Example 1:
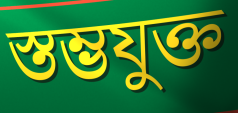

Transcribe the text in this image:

স্তম্ভযুক্ত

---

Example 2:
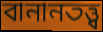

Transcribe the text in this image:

বানানতত্ত্ব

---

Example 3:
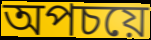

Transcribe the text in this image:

অপচয়ে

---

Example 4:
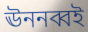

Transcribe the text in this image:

ঊননব্বই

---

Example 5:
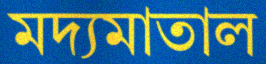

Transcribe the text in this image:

মদ্যমাতাল